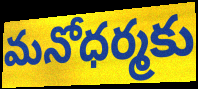
మనోధర్మకు